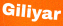
Giliyar